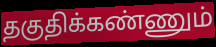
தகுதிக்கண்ணும்